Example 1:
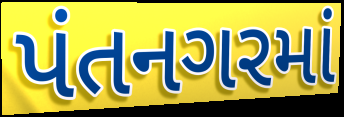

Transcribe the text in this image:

પંતનગરમાં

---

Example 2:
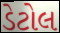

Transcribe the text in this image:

ડેટોલ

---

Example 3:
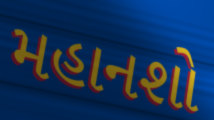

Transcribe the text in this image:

મહાનશો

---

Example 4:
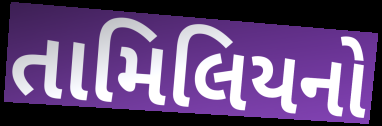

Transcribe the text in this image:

તામિલિયનો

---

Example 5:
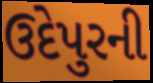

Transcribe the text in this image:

ઉદેપુરની